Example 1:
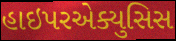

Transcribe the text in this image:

હાઇપરએક્યુસિસ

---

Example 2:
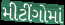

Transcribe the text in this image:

મીટીંગોમાં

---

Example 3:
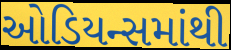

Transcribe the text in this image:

ઓડિયન્સમાંથી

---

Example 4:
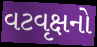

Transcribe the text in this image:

વટવૃક્ષનો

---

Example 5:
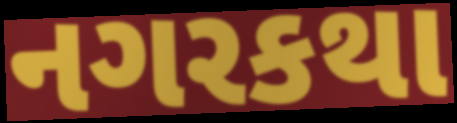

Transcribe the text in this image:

નગરકથા